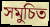
সমুচিত